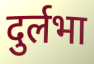
दुर्लभा